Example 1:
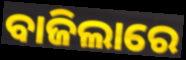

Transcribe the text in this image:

ବାଜିଲାରେ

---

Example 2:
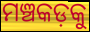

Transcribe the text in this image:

ମଞ୍ଚକଡ଼କୁ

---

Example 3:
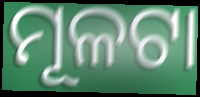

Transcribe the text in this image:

ମୂଳଟା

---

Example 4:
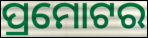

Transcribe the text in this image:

ପ୍ରମୋଟର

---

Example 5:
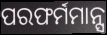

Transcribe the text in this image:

ପରଫର୍ମମାନ୍ସ